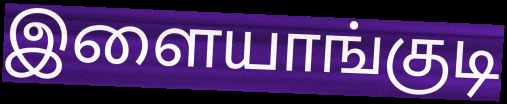
இளையாங்குடி